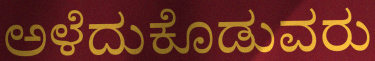
ಅಳೆದುಕೊಡುವರು